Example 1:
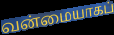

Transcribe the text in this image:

வன்மையாகப்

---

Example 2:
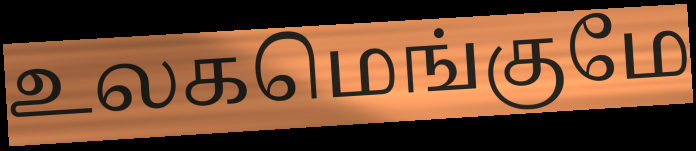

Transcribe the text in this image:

உலகமெங்குமே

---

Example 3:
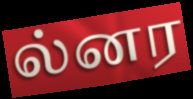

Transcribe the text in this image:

ல்னர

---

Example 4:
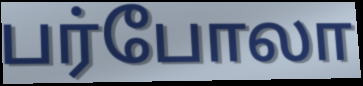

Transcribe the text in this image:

பர்போலா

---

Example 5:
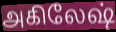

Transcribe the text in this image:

அகிலேஷ்